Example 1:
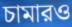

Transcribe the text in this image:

চামারও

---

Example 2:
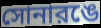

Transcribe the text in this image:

সোনারঙে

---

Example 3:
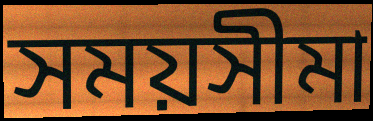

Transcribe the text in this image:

সময়সীমা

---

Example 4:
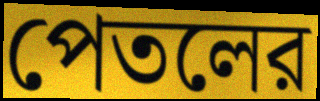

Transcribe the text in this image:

পেতলের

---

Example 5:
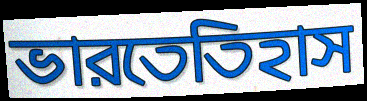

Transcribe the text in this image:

ভারতেতিহাস